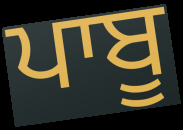
ਪਾਬੂ